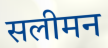
सलीमन